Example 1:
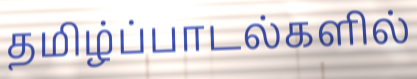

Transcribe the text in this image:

தமிழ்ப்பாடல்களில்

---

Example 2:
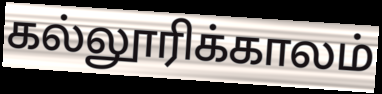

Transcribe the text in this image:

கல்லூரிக்காலம்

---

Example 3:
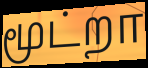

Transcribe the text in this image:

மூட்றா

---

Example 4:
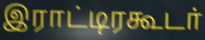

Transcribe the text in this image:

இராட்டிரகூடர்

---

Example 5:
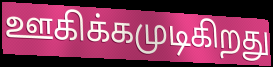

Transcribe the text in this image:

ஊகிக்கமுடிகிறது